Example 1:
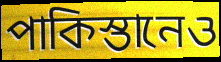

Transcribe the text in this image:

পাকিস্তানেও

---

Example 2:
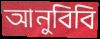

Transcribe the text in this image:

আনুবিবি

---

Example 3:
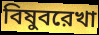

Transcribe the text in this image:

বিষুবরেখা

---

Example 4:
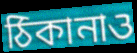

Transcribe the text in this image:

ঠিকানাও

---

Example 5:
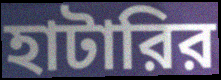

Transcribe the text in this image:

হাটারির